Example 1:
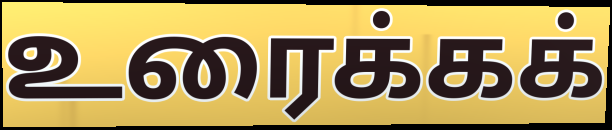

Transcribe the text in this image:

உரைக்கக்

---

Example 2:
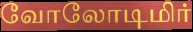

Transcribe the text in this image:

வோலோடிமிர்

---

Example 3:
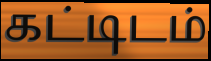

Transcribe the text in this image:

கட்டிடம்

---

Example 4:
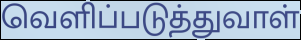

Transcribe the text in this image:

வெளிப்படுத்துவாள்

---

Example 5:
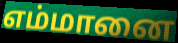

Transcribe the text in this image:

எம்மானை